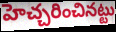
హెచ్చరించినట్టు